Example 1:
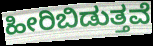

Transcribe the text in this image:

ಹೀರಿಬಿಡುತ್ತವೆ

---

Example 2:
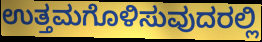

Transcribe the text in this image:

ಉತ್ತಮಗೊಳಿಸುವುದರಲ್ಲಿ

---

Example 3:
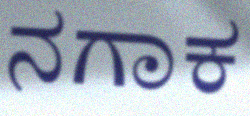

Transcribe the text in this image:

ನಗಾಕ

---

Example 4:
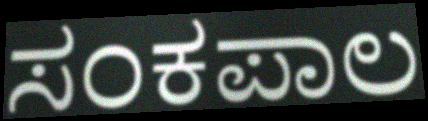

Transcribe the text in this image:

ಸಂಕಪಾಲ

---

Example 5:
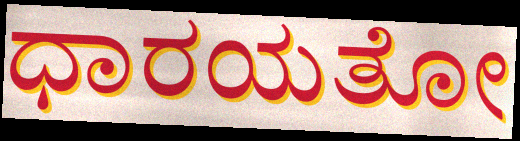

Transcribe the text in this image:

ಧಾರಯತೋ